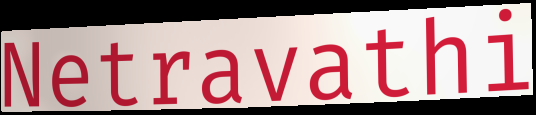
Netravathi